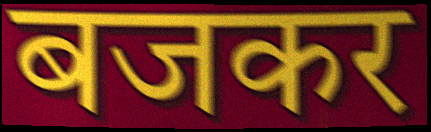
बजकर